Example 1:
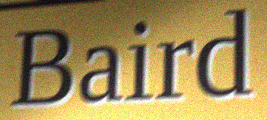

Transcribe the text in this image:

Baird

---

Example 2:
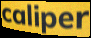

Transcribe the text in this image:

caliper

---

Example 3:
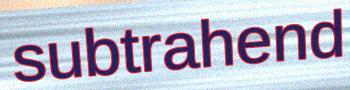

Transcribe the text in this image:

subtrahend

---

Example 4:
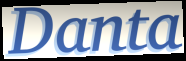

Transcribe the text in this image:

Danta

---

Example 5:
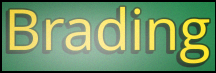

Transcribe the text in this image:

Brading